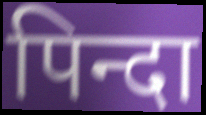
पिन्दा